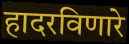
हादरविणारे